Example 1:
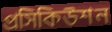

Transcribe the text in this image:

প্রসিকিউশন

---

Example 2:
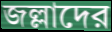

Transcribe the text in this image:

জল্লাদের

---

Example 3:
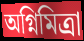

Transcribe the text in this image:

অগ্নিমিত্রা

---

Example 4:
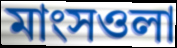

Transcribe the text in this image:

মাংসওলা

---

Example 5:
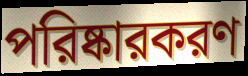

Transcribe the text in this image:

পরিষ্কারকরণ